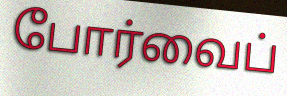
போர்வைப்